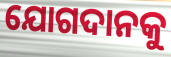
ଯୋଗଦାନକୁ